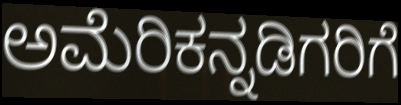
ಅಮೆರಿಕನ್ನಡಿಗರಿಗೆ